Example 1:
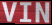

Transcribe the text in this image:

VIN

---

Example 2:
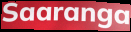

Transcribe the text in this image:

Saaranga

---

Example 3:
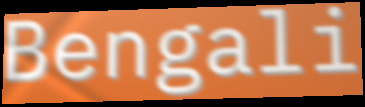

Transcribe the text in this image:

Bengali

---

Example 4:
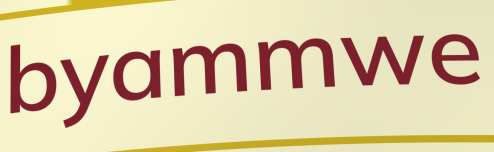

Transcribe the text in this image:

byammwe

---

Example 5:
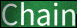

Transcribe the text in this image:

Chain